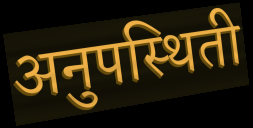
अनुपस्थिती